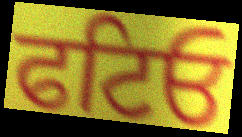
ਫਟਿਓ